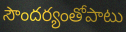
సౌందర్యంతోపాటు